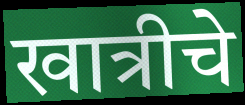
खात्रीचे